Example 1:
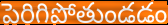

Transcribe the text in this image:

పెరిగిపోతుండడం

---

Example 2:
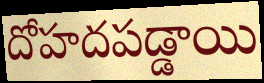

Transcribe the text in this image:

దోహదపడ్డాయి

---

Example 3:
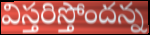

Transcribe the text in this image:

విస్తరిస్తోందన్న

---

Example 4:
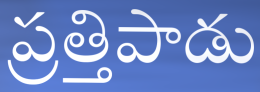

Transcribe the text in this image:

ప్రత్తిపాడు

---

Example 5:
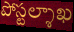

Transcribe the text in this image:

పోస్టల్శాఖ